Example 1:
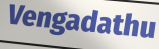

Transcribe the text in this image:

Vengadathu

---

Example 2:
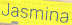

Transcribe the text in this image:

Jasmina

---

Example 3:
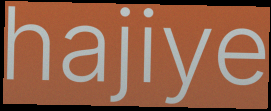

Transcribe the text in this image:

hajiye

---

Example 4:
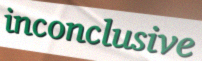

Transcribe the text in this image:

inconclusive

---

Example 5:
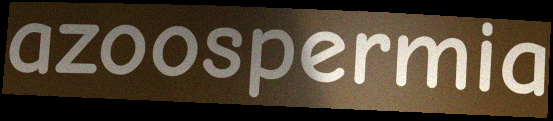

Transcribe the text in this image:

azoospermia